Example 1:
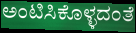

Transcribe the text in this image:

ಅಂಟಿಸಿಕೊಳ್ಳದಂತೆ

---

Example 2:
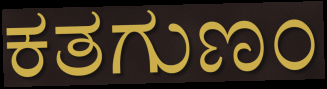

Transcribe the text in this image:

ಕತಗುಣಂ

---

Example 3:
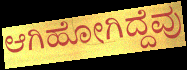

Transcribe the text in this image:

ಆಗಿಹೋಗಿದ್ದೆವು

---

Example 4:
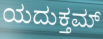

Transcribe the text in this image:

ಯದುಕ್ತಮ್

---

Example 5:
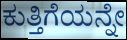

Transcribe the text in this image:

ಕುತ್ತಿಗೆಯನ್ನೇ